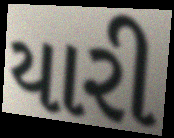
યારી